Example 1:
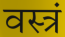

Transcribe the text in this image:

वस्त्रं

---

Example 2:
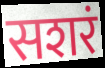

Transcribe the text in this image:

सशरं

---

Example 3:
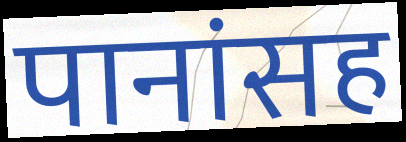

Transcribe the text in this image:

पानांसह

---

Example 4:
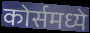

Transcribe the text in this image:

कोर्समध्ये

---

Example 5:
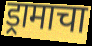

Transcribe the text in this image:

ड्रामाचा